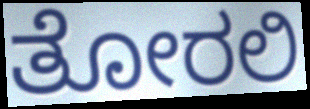
ತೋರಲಿ